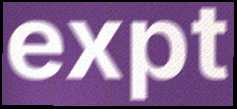
expt